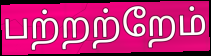
பற்றற்றேம்